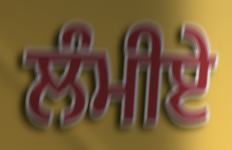
ਲੰਮੀਏ